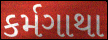
કર્મગાથા